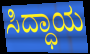
ಸಿದ್ಧಾಯ